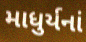
માધુર્યનાં